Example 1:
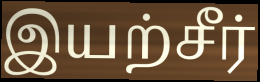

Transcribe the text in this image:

இயற்சீர்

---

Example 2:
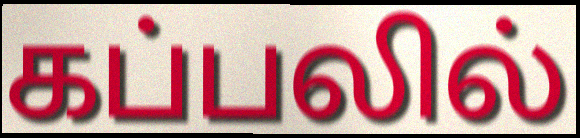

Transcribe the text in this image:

கப்பலில்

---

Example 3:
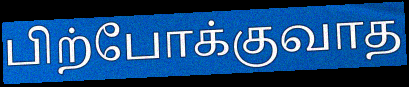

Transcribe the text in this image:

பிற்போக்குவாத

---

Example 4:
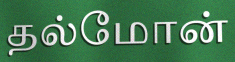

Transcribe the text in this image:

தல்மோன்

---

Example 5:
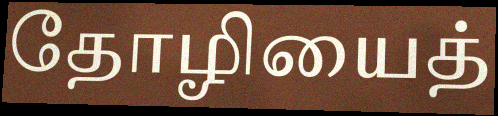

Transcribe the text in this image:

தோழியைத்